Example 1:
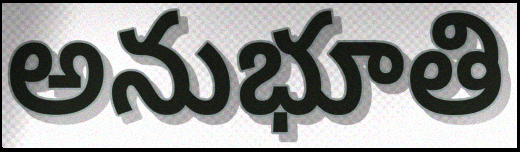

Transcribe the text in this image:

అనుభూతి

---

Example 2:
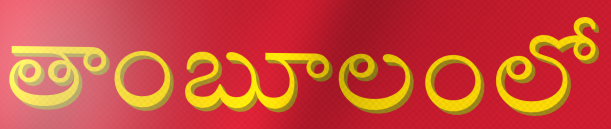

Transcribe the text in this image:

తాంబూలంలో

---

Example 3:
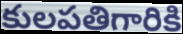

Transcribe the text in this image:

కులపతిగారికి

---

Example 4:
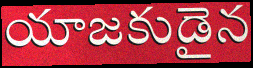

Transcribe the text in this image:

యాజకుడైన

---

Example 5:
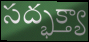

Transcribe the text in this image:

సద్భక్త్యా